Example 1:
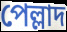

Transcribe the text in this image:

পেল্লাদ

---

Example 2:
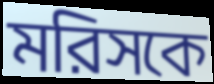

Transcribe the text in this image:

মরিসকে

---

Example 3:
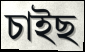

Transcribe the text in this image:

চাইছ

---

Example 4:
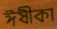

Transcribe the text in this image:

ঈষীকা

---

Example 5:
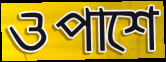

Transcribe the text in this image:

ওপাশে